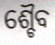
ଶ୍ଚୈବ